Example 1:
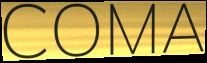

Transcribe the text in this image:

COMA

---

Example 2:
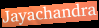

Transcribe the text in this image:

Jayachandra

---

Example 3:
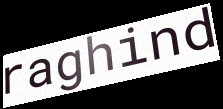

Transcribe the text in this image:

raghind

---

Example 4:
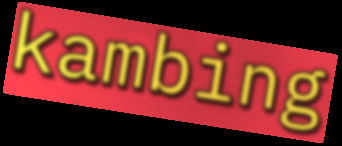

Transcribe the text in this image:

kambing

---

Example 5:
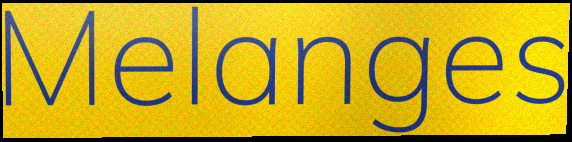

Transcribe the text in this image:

Melanges